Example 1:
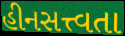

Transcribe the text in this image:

હીનસત્ત્વતા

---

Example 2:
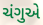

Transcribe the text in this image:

ચંગુએ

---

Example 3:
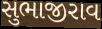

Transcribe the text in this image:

સુભાજીરાવ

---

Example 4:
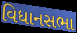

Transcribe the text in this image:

વિધાનસભા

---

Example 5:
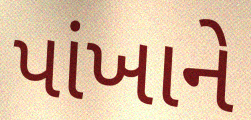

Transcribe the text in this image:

પાંખાને